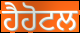
ਹੈਹੋਟਲ